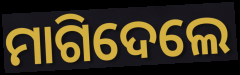
ମାଗିଦେଲେ